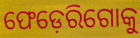
ଫେଡ଼େରିଗୋକୁ